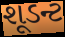
શૂડન્ટ